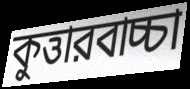
কুত্তারবাচ্চা